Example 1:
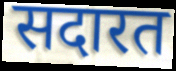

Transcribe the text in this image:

सदारत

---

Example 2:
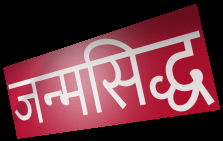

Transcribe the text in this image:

जन्‍मसिद्ध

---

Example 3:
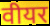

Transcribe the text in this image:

वीयर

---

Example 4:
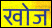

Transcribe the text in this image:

खोज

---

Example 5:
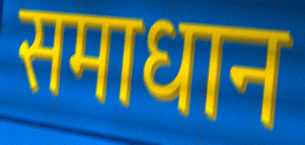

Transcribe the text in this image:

समाधान